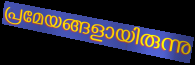
പ്രമേയങ്ങളായിരുന്നു